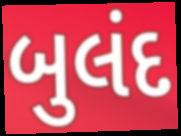
બુલંદ